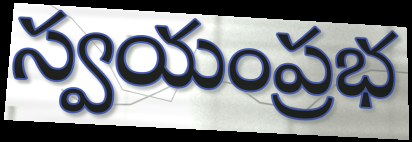
స్వయంప్రభ